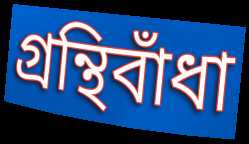
গ্রন্থিবাঁধা